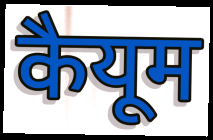
कैयूम